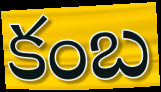
కంబ